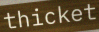
thicket